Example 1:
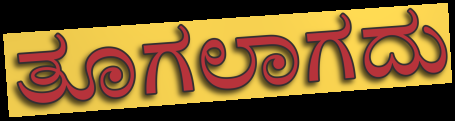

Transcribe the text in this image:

ತೂಗಲಾಗದು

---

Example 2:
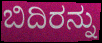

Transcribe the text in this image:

ಬಿದಿರನ್ನು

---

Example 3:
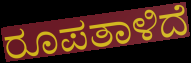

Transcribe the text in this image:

ರೂಪತಾಳಿದೆ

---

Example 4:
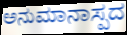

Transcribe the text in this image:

ಅನುಮಾನಾಸ್ಪದ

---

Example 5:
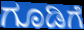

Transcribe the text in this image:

ಗೂಡಿಗೆ